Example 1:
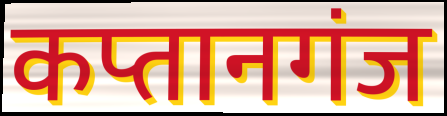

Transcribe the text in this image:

कप्तानगंज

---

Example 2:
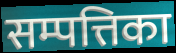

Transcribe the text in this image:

सम्पत्तिका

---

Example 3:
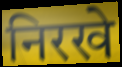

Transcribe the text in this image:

निरखे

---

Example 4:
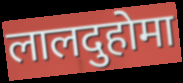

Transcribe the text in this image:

लालदुहोमा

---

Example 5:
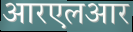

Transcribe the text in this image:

आरएलआर